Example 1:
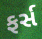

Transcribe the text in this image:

ફર્સ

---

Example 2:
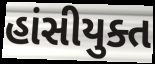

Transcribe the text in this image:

હાંસીયુક્ત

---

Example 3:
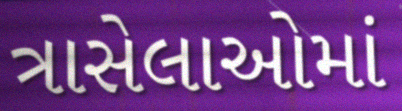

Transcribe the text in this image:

ત્રાસેલાઓમાં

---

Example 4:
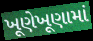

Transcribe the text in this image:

ખૂણેખૂણામાં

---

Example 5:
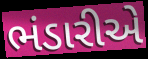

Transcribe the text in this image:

ભંડારીએ